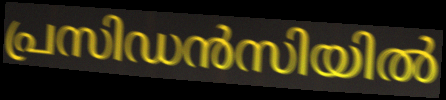
പ്രസിഡൻസിയിൽ